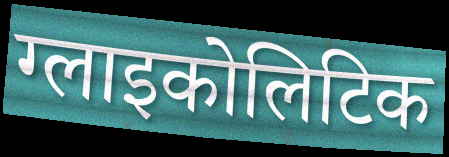
ग्लाइकोलिटिक